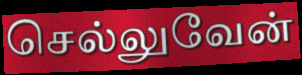
செல்லுவேன்